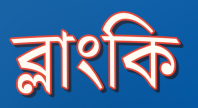
ব্লাংকি